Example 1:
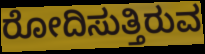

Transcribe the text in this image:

ರೋದಿಸುತ್ತಿರುವ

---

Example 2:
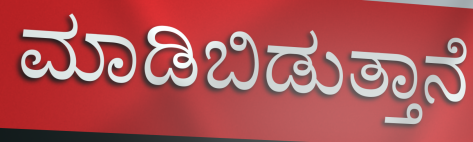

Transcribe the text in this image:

ಮಾಡಿಬಿಡುತ್ತಾನೆ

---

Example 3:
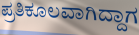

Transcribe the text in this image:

ಪ್ರತಿಕೂಲವಾಗಿದ್ದಾಗ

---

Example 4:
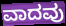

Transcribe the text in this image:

ವಾದವು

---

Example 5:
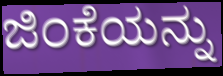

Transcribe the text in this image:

ಜಿಂಕೆಯನ್ನು